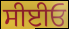
ਸੀਈਓ